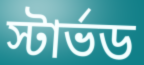
স্টার্ভড